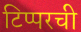
टिप्परची